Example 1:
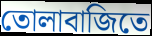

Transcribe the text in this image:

তোলাবাজিতে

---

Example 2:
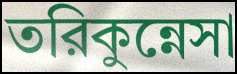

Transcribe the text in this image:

তরিকুন্নেসা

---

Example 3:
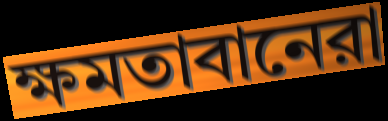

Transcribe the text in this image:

ক্ষমতাবানেরা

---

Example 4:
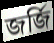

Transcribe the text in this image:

জর্জি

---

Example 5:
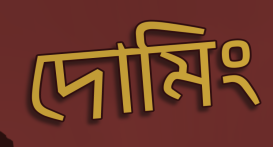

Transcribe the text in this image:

দোমিং